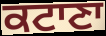
ਕਟਾਣਾ